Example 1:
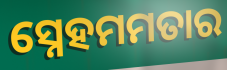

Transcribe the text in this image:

ସ୍ନେହମମତାର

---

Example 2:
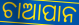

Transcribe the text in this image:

ଚାଆପାନ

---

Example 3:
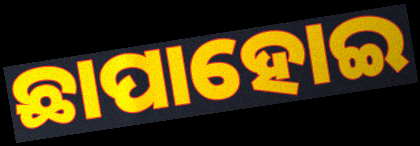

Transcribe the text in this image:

ଛାପାହୋଇ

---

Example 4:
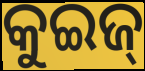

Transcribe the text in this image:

କୁଇଜ୍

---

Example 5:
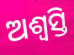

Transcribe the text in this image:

ଅଶ୍ୱସ୍ତି